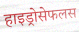
हाइड्रोसेफलस